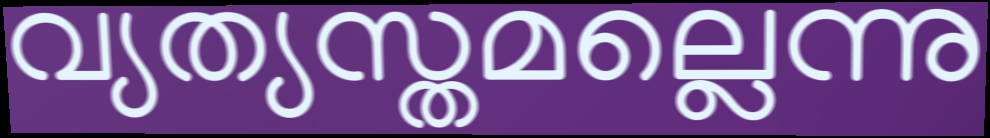
വ്യത്യസ്തമല്ലെന്നു